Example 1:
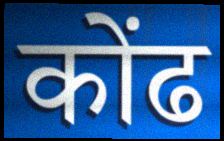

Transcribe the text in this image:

कोंढ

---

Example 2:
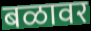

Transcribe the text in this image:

बळावर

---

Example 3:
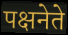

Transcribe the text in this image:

पक्षनेते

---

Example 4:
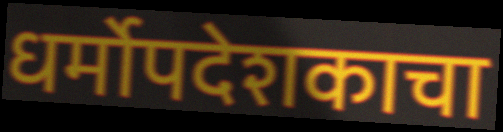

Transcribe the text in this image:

धर्मोपदेशकाचा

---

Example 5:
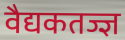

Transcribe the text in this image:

वैद्यकतज्ज्ञ